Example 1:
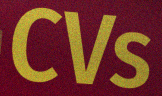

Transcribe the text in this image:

CVs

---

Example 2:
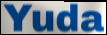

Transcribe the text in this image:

Yuda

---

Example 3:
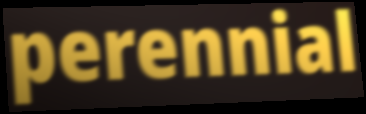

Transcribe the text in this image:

perennial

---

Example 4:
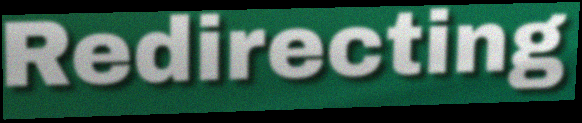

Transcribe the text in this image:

Redirecting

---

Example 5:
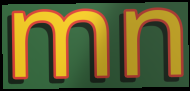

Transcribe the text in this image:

mn